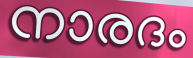
നാരദം